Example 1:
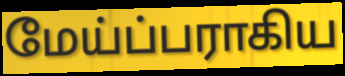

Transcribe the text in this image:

மேய்ப்பராகிய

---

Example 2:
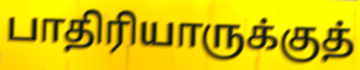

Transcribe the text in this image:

பாதிரியாருக்குத்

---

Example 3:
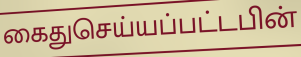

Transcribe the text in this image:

கைதுசெய்யப்பட்டபின்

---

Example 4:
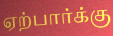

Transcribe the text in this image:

ஏற்பார்க்கு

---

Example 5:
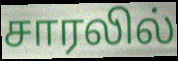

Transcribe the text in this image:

சாரலில்